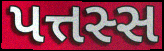
પત્તસ્સ